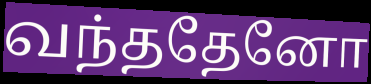
வந்ததேனோ